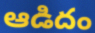
ఆడిదం